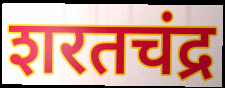
शरतचंद्र